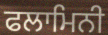
ਫਲਾਮਿਨੀ